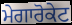
ਮੇਗਾਰੋਕੇਟ